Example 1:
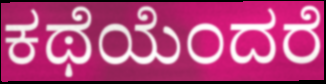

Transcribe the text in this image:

ಕಥೆಯೆಂದರೆ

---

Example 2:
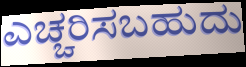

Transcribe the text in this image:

ಎಚ್ಚರಿಸಬಹುದು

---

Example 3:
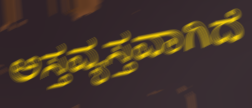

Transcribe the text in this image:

ಅಸ್ತವ್ಯಸ್ತವಾಗಿದೆ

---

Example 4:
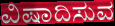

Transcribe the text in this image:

ವಿಷಾದಿಸುವ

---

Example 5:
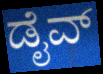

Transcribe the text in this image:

ಡೈವ್